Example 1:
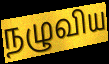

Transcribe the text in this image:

நழுவிய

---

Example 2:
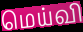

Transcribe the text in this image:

மெய்வி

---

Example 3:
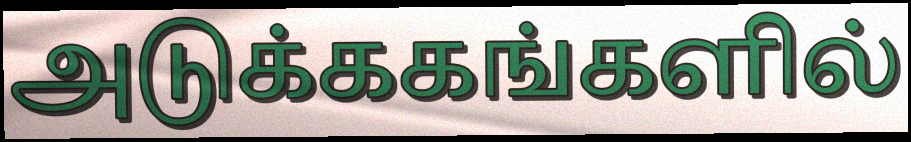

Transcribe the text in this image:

அடுக்ககங்களில்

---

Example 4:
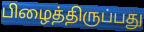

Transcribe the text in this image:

பிழைத்திருப்பது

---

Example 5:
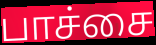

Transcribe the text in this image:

பாச்சை